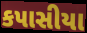
કપાસીયા